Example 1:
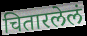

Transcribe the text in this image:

चितारलेलं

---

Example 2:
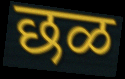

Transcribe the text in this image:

छळ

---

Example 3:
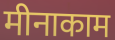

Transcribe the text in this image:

मीनाकाम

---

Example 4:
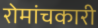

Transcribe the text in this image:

रोमांचकारी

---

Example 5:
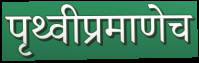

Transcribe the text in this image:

पृथ्वीप्रमाणेच